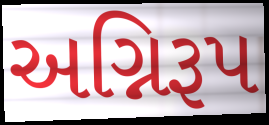
અગ્નિરૂપ